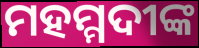
ମହମ୍ମଦୀଙ୍କ